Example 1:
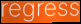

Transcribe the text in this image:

regress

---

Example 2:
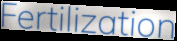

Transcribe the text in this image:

Fertilization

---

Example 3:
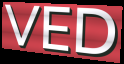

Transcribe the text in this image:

VED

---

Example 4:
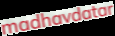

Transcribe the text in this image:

madhavdatar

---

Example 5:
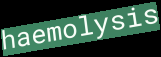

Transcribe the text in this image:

haemolysis